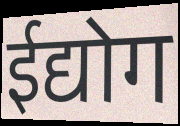
ईद्योग